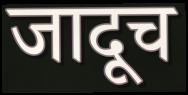
जादूच